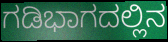
ಗಡಿಭಾಗದಲ್ಲಿನ